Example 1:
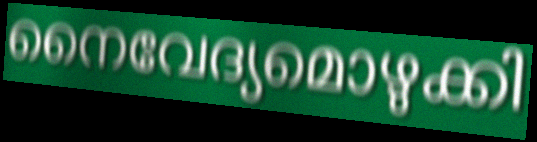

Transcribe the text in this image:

നൈവേദ്യമൊഴുക്കി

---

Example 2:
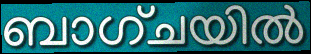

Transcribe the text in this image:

ബാഗ്ചയിൽ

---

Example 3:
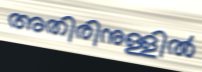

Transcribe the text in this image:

അതിരിനുള്ളിൽ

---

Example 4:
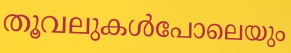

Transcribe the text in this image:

തൂവലുകൾപോലെയും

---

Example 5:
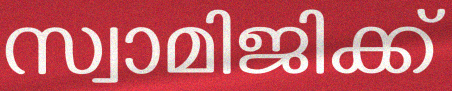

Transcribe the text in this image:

സ്വാമിജിക്ക്